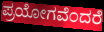
ಪ್ರಯೋಗವೆಂದರೆ